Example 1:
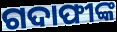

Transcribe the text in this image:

ଗଦାଫୀଙ୍କ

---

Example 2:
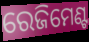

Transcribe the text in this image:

ରେଜିମେଣ୍ଟ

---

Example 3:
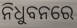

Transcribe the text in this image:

ନିଧୁବନରେ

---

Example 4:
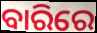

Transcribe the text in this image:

ବାରିରେ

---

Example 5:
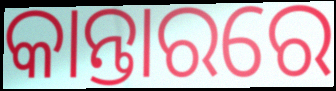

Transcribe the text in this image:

କାନ୍ତାରରେ